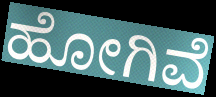
ಹೋಗಿವೆ